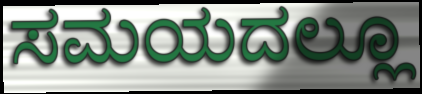
ಸಮಯದಲ್ಲೂ